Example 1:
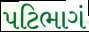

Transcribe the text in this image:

પટિભાગં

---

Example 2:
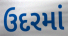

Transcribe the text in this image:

ઉદરમાં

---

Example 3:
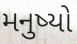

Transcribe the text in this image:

મનુષ્યો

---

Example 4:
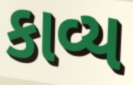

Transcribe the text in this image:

કાવ્ય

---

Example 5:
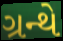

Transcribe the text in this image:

ગ્રન્થે